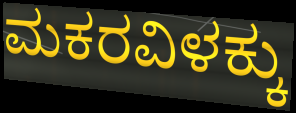
ಮಕರವಿಳಕ್ಕು